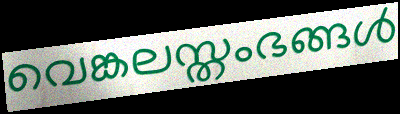
വെങ്കലസ്തംഭങ്ങൾ